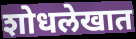
शोधलेखात